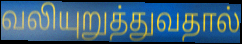
வலியுறுத்துவதால்